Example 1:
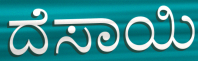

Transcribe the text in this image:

ದೆಸಾಯಿ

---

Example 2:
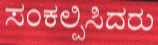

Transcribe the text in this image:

ಸಂಕಲ್ಪಿಸಿದರು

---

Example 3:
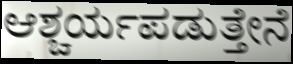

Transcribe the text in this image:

ಆಶ್ಚರ್ಯಪಡುತ್ತೇನೆ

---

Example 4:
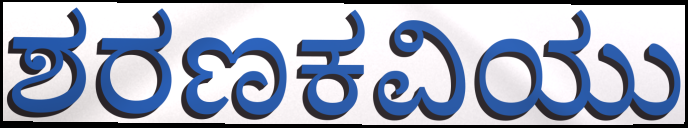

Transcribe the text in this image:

ಶರಣಕವಿಯು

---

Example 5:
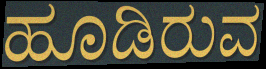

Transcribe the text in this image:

ಹೂಡಿರುವ